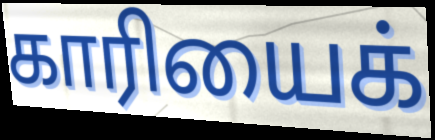
காரியைக்